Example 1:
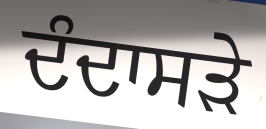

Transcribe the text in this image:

ਦੰਦਾਸੜੇ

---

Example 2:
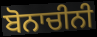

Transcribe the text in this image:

ਬੋਨਾਚੀਨੀ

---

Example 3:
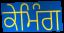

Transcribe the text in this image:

ਕੇਮਿੰਗ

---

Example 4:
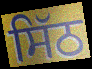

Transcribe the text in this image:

ਸਿੱਠ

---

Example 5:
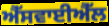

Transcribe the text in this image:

ਐੱਸਵਾਈਐੱਲ